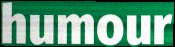
humour